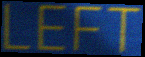
LEFT